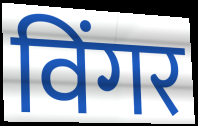
विंगर